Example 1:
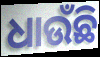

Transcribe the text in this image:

ଧାଉଁଛି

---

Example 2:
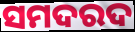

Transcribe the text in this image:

ସମଦରଦ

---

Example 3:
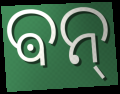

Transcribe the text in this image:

ଵନ୍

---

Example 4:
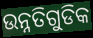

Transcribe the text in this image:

ଉନ୍ନତିଗୁଡିକ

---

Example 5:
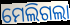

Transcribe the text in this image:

ମେଲିଗଲା